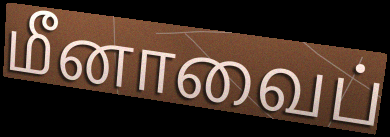
மீனாவைப்